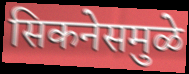
सिकनेसमुळे